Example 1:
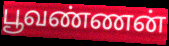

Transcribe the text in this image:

பூவண்ணன்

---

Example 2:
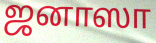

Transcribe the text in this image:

ஜனாஸா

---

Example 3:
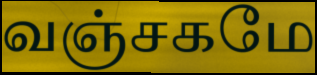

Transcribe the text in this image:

வஞ்சகமே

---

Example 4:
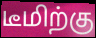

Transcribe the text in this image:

டீமிற்கு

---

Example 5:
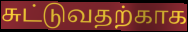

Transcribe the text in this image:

சுட்டுவதற்காக